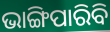
ଭାଙ୍ଗିପାରିବି